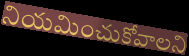
నియమించుకోవాలని